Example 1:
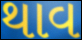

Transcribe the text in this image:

થાવ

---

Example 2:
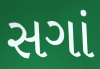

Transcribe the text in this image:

સગાં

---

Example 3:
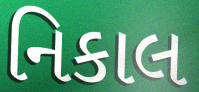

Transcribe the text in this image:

નિકાલ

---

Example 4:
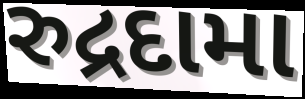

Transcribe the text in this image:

રુદ્રદામા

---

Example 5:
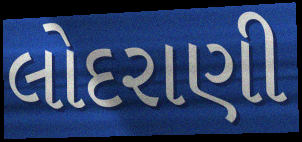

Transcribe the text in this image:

લોદરાણી